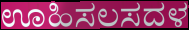
ಊಹಿಸಲಸದಳ